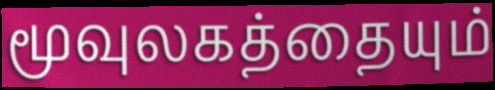
மூவுலகத்தையும்